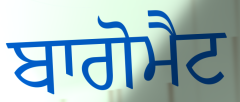
ਬਾਗੋਮੈਟ